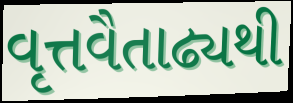
વૃત્તવૈતાઢ્યથી